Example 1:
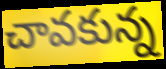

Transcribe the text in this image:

చావకున్న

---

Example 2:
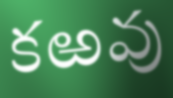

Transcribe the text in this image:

కఱవు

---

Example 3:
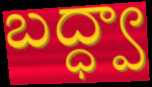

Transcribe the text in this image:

బద్ధ్వా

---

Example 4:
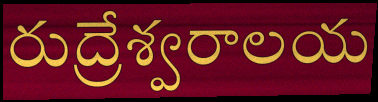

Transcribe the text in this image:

రుద్రేశ్వరాలయ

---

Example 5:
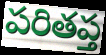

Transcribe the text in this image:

పరితప్త